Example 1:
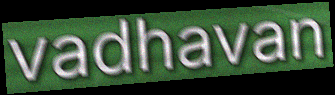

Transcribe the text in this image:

vadhavan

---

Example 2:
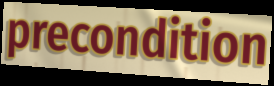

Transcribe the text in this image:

precondition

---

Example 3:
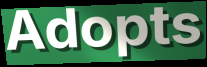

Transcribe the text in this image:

Adopts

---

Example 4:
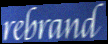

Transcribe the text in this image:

rebrand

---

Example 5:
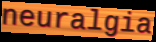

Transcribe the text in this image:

neuralgia